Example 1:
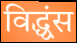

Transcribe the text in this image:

विद्ध्वंस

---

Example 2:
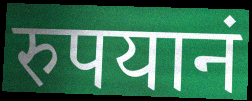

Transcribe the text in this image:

रुपयानं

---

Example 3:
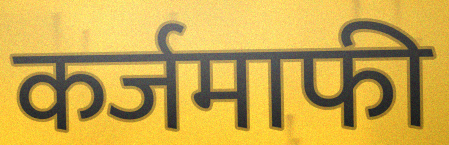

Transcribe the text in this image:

कर्जमाफी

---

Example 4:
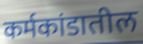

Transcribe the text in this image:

कर्मकांडातील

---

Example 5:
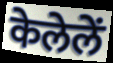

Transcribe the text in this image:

केलेलें